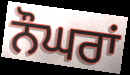
ਨੌਘਰਾਂ